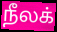
நீலக்